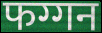
फग्‍गन